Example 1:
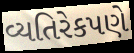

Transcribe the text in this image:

વ્યતિરેકપણે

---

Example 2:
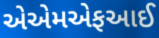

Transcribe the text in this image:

એએમએફઆઈ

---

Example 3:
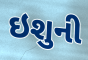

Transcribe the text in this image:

ઇશુની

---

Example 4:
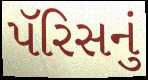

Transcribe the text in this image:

પૅરિસનું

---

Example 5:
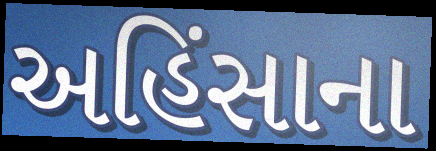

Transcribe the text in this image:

અહિંસાના